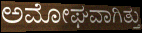
ಅಮೋಘವಾಗಿತ್ತು